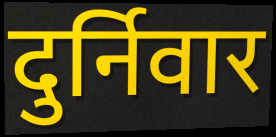
दुर्निवार